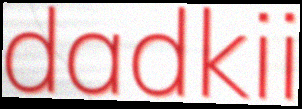
dadkii